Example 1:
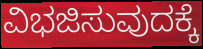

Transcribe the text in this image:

ವಿಭಜಿಸುವುದಕ್ಕೆ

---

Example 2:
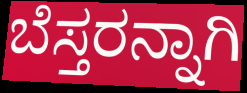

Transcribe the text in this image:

ಬೆಸ್ತರನ್ನಾಗಿ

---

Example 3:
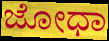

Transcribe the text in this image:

ಜೋಧಾ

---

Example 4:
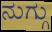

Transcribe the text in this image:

ನುಗ್ಗು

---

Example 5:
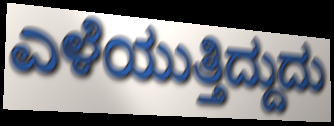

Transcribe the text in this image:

ಎಳೆಯುತ್ತಿದ್ದುದು